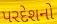
પરદેશનો